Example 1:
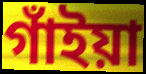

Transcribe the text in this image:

গাঁইয়া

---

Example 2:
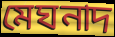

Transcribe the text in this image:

মেঘনাদ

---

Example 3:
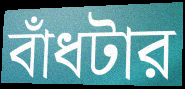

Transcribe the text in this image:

বাঁধটার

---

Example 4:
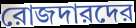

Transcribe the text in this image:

রোজদারদের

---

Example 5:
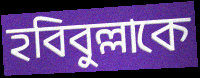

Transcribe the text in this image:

হবিবুল্লাকে